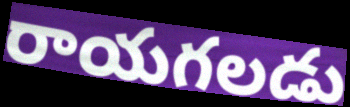
రాయగలడు